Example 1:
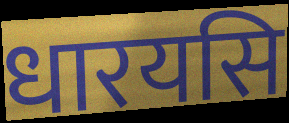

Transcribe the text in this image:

धारयसि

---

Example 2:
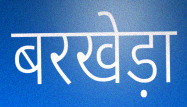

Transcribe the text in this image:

बरखेड़ा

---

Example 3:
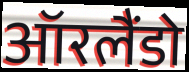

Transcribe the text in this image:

ऑरलैंडो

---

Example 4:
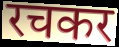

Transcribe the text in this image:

रचकर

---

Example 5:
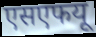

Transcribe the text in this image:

एसएफयू